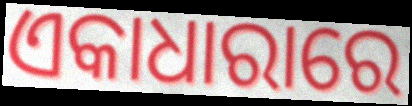
ଏକାଧାରାରେ